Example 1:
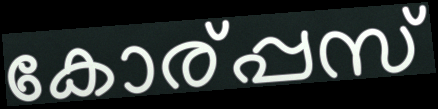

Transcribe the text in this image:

കോര്പ്പസ്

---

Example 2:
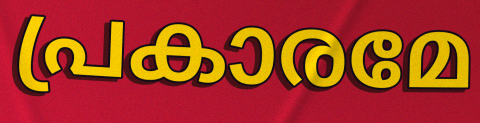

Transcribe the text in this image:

പ്രകാരമേ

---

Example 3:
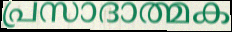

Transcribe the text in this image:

പ്രസാദാത്മക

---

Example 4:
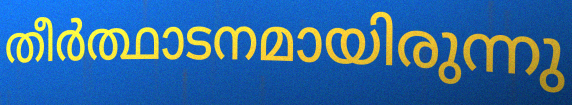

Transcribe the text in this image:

തീർത്ഥാടനമായിരുന്നു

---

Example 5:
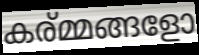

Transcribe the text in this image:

കര്മ്മങ്ങളോ